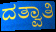
ದತ್ವಾತಿ